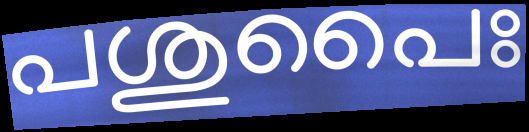
പശുപൈഃ